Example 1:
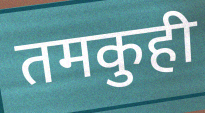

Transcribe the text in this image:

तमकुही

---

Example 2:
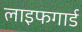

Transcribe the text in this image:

लाइफगार्ड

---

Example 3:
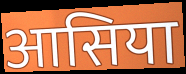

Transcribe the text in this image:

आसिया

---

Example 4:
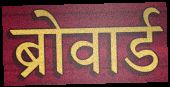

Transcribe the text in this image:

ब्रोवार्ड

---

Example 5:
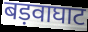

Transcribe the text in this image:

बड़वाघाट